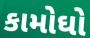
કામોઘો